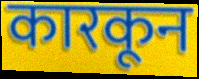
कारकून